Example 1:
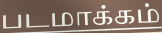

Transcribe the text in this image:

படமாக்கம்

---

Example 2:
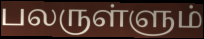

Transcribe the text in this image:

பலருள்ளும்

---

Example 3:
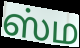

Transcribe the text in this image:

ஸ்ம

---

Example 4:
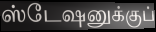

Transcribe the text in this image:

ஸ்டேஷனுக்குப்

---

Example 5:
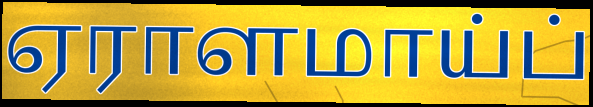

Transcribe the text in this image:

ஏராளமாய்ப்